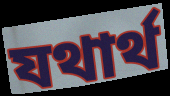
যথার্থ